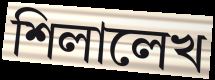
শিলালেখ